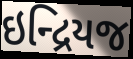
ઇન્દ્રિયજ